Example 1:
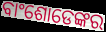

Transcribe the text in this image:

ବାଂଶୋଡେଙ୍କର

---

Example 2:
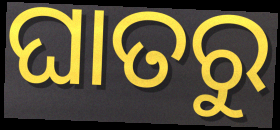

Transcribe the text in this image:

ଘାତରୁ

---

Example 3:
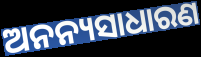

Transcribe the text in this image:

ଅନନ୍ୟସାଧାରଣ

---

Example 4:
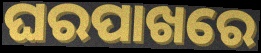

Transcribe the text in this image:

ଘରପାଖରେ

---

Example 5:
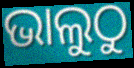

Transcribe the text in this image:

ଭାଲୁଠୁ